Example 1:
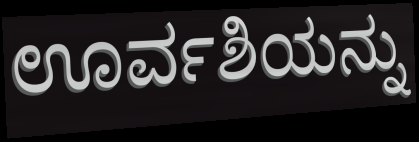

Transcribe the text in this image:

ಊರ್ವಶಿಯನ್ನು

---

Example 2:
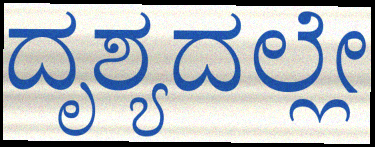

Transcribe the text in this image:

ದೃಶ್ಯದಲ್ಲೇ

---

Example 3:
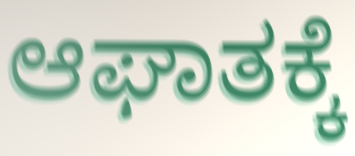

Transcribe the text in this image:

ಆಘಾತಕ್ಕೆ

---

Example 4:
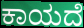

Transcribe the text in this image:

ಕಾಯದೆ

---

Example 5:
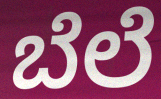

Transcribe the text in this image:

ಬೆಲೆ